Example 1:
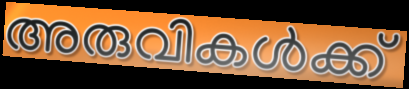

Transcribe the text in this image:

അരുവികൾക്ക്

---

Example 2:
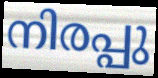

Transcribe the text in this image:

നിരപ്പു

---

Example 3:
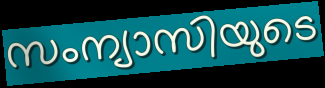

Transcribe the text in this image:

സംന്യാസിയുടെ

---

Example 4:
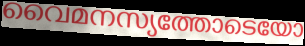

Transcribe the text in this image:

വൈമനസ്യത്തോടെയോ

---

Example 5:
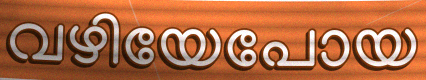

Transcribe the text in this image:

വഴിയേപോയ